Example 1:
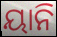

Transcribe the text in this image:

ୟାନି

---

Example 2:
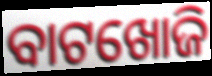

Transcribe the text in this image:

ବାଟଖୋଜି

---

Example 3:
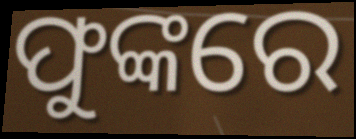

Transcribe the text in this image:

ଫୁଙ୍କରେ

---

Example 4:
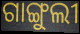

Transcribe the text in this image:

ଗାଙ୍ଗୁଲୀ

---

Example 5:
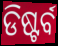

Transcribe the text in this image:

ଡିଷ୍ଟର୍ବ